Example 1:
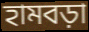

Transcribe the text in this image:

হামবড়া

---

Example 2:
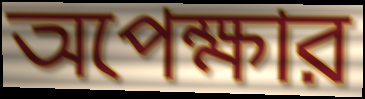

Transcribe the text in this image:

অপেক্ষার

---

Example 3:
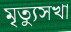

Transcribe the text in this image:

মৃত্যুসখা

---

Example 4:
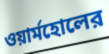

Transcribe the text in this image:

ওয়ার্মহোলের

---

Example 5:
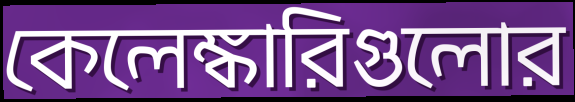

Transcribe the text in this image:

কেলেঙ্কারিগুলোর